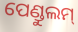
ପେଣ୍ଡୁଲମ୍